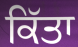
ਕਿੱਤਾ